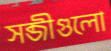
সব্জীগুলো